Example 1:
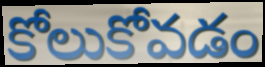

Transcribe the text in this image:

కోలుకోవడం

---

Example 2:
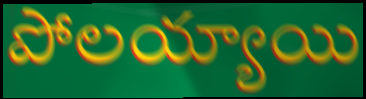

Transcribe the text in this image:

పోలయ్యాయి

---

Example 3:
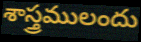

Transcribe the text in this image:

శాస్త్రములందు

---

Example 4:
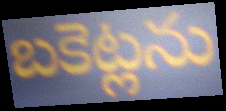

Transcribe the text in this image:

బకెట్లను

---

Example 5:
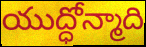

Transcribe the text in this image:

యుద్ధోన్మాది